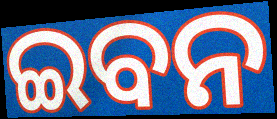
ଇବନ